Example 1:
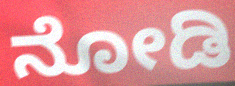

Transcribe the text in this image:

ನೋಡಿ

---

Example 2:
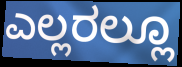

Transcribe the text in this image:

ಎಲ್ಲರಲ್ಲೂ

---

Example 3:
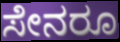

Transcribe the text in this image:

ಸೇನರೂ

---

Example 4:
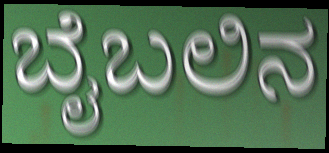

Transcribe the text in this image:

ಬೈಬಲಿನ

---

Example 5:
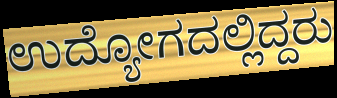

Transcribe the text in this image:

ಉದ್ಯೋಗದಲ್ಲಿದ್ದರು